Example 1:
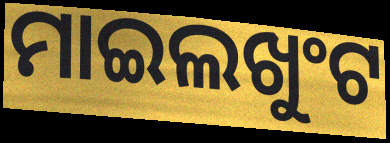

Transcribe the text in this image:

ମାଇଲଖୁଂଟ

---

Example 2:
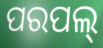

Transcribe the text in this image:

ପରପଲ୍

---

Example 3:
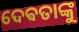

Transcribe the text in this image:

ଦେଵତାଙ୍କୁ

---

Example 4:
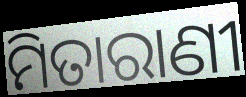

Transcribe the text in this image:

ମିତାରାଣୀ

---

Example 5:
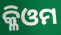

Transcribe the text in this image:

କ୍ଳିଓମ